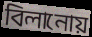
বিলানোয়